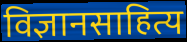
विज्ञानसाहित्य